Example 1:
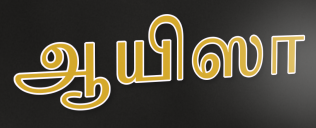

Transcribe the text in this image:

ஆயிஸா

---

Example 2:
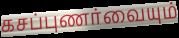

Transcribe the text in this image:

கசப்புணர்வையும்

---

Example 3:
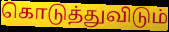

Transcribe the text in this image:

கொடுத்துவிடும்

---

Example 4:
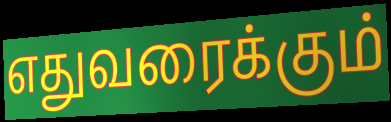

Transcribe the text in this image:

எதுவரைக்கும்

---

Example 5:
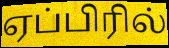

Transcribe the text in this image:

ஏப்பிரில்